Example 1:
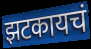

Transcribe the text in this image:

झटकायचं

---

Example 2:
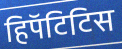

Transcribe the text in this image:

हिपॅटिटिस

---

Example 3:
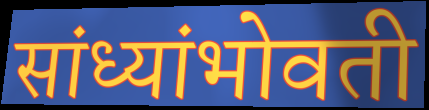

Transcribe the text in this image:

सांध्यांभोवती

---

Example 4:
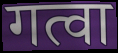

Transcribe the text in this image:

गत्वा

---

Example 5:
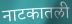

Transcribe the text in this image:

नाटकातली